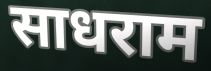
साधराम